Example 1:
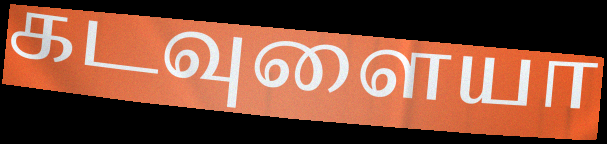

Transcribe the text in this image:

கடவுளையா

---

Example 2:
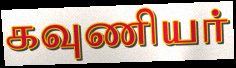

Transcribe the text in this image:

கவுணியர்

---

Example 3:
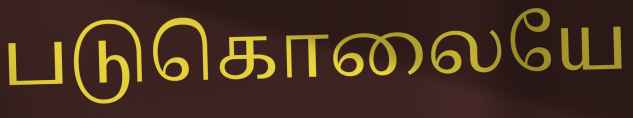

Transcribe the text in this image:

படுகொலையே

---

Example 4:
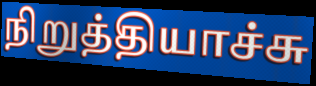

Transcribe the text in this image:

நிறுத்தியாச்சு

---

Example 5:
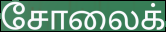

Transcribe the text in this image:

சோலைக்